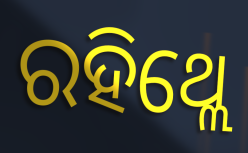
ରହିଥ୍ଲେ